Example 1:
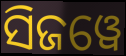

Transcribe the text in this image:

ସିଜୱେ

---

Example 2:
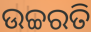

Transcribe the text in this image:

ଉଚ୍ଚରତି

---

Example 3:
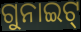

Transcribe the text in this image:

ଗୁନାଇଟ୍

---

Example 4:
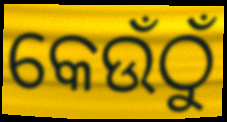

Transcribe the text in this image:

କେଉଁଠୁଁ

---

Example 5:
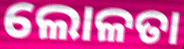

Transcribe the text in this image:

ଲୋଳତା